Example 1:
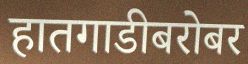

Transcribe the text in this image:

हातगाडीबरोबर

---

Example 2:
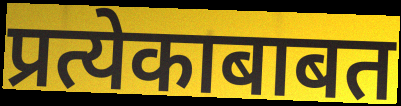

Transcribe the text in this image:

प्रत्येकाबाबत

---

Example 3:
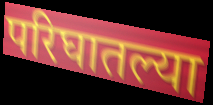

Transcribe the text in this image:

परिघातल्या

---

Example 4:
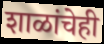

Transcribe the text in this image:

शाळांचेही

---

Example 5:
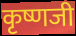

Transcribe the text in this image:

कृष्णजी